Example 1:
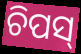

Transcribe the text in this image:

ଚିପସ୍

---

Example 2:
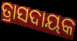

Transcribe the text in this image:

ତ୍ରାସଦାୟକ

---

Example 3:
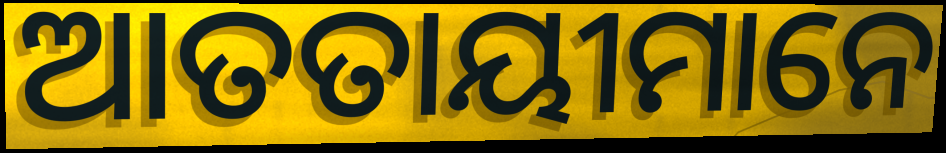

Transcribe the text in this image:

ଆତତାୟୀମାନେ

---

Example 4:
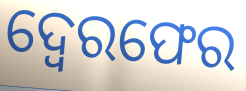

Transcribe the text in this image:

ଦ୍ବେରଫେର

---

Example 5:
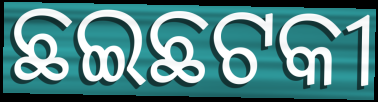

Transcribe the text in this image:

ଛଇଛଟକୀ